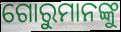
ଗୋରୁମାନଙ୍କୁ